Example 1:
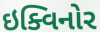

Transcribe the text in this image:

ઇક્વિનોર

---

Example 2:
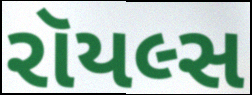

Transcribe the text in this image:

રૉયલ્સ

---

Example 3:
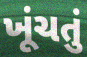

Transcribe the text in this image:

ખૂંચતું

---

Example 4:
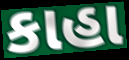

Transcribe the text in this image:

કાહા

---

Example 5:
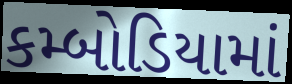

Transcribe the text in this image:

કમ્બોડિયામાં